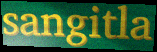
sangitla